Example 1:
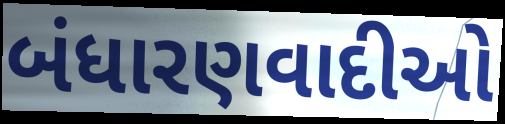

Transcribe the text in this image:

બંધારણવાદીઓ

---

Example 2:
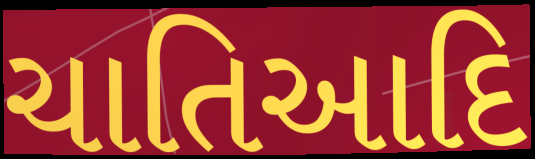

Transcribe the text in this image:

ચાતિઆદિ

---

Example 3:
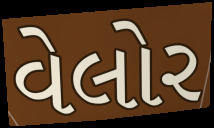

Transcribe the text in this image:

વેલોર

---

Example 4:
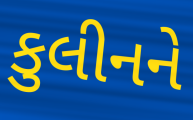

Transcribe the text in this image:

કુલીનને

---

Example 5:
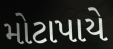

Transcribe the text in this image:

મોટાપાયે